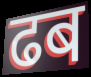
ढब